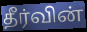
தீர்வின்